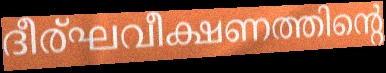
ദീര്ഘവീക്ഷണത്തിന്റെ